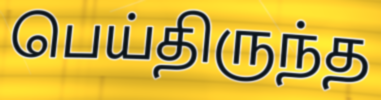
பெய்திருந்த